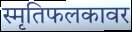
स्मृतिफलकावर